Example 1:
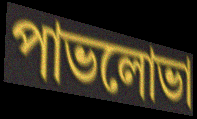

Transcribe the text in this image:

পাভলোভা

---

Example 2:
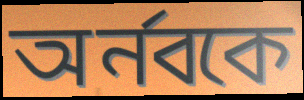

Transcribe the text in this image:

অর্নবকে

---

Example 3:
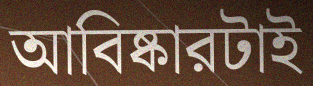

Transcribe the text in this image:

আবিষ্কারটাই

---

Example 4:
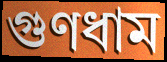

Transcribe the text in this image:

গুণধাম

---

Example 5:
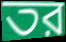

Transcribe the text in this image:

তর